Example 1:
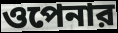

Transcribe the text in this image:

ওপেনার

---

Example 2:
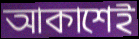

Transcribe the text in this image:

আকাশেই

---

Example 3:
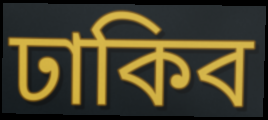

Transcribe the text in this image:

ঢাকিব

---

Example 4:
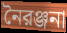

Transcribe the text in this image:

নৈরঞ্জনা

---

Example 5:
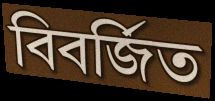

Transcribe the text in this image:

বিবর্জিত